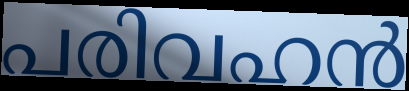
പരിവഹൻ